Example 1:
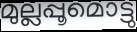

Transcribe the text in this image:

മുല്ലപ്പൂമൊട്ടു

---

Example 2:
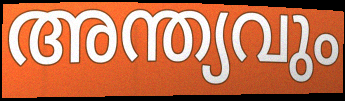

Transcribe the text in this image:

അന്ത്യവും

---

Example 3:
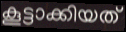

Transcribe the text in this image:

കൂട്ടാക്കിയത്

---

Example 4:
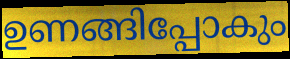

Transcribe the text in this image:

ഉണങ്ങിപ്പോകും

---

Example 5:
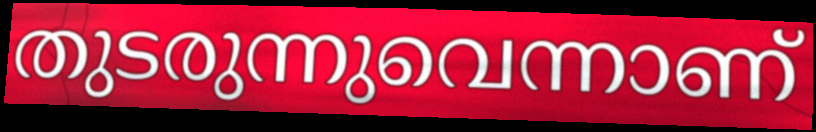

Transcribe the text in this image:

തുടരുന്നുവെന്നാണ്